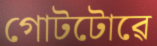
গোটটোৱে